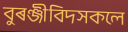
বুৰঞ্জীবিদসকলে